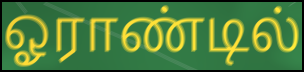
ஓராண்டில்